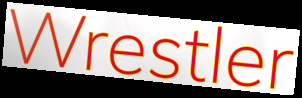
Wrestler